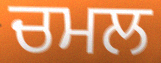
ਚਮਲ